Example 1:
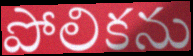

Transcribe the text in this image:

పోలికను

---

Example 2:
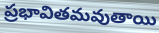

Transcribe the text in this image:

ప్రభావితమవుతాయి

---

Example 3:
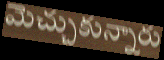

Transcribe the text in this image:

మెచ్చుకున్నారు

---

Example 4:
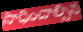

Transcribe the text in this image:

సాధించాల్సిన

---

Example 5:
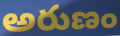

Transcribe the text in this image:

అరుణం